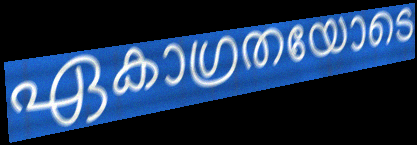
ഏകാഗ്രതയോടെ